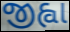
જીહ્વા